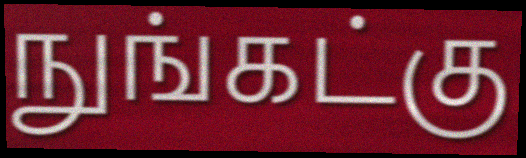
நுங்கட்கு